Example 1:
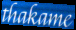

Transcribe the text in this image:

thakame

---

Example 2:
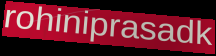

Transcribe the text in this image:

rohiniprasadk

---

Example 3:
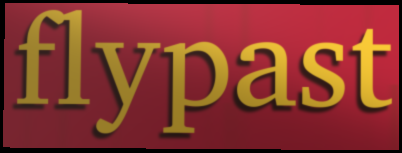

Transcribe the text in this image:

flypast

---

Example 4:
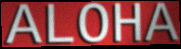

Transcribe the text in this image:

ALOHA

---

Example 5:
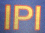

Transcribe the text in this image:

IPI